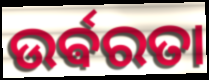
ଉର୍ଵରତା